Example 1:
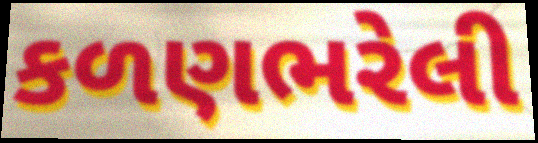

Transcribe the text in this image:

કળણભરેલી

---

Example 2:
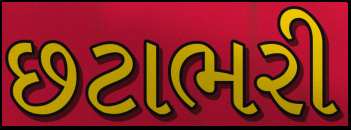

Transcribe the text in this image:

છટાભરી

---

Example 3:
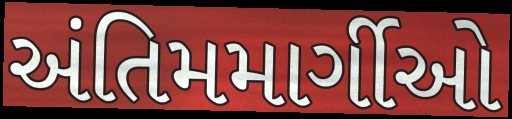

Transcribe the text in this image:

અંતિમમાર્ગીઓ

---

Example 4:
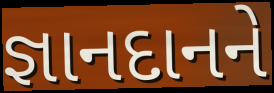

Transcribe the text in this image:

જ્ઞાનદાનને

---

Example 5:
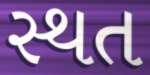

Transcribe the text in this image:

સ્થત